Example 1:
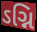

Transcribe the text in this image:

ઽગ્નિ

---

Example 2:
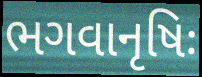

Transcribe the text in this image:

ભગવાનૃષિઃ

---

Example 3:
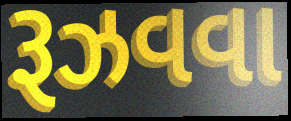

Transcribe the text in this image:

રૂઝવવા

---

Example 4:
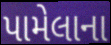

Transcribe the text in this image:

પામેલાના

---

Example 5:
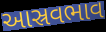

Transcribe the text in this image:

આસ્રવભાવ